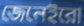
জেনেইরো